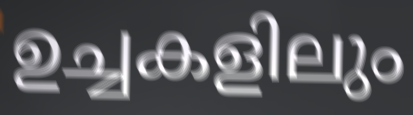
ഉച്ചകളിലും